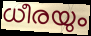
ധീരയും